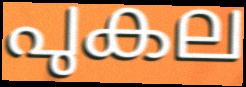
പുകല